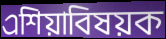
এশিয়াবিষয়ক